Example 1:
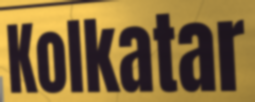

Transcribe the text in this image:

Kolkatar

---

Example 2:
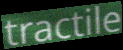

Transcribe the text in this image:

tractile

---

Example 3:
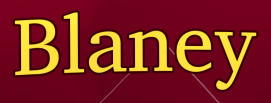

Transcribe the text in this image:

Blaney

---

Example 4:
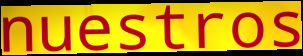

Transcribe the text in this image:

nuestros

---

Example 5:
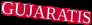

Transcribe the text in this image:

GUJARATIS